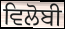
ਵਿਲੋਬੀ